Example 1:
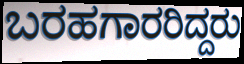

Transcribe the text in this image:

ಬರಹಗಾರರಿದ್ದರು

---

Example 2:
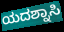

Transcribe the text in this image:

ಯದಶ್ನಾಸಿ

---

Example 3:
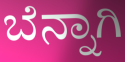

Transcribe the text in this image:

ಬೆನ್ನಾಗಿ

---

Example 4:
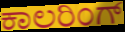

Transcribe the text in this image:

ಕಾಲರಿಂಗ್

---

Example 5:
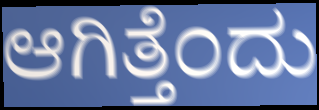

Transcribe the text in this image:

ಆಗಿತ್ತೆಂದು